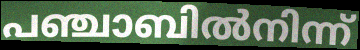
പഞ്ചാബിൽനിന്ന്